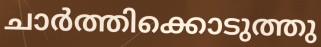
ചാർത്തിക്കൊടുത്തു